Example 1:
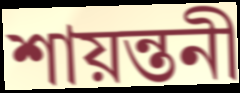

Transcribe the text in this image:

শায়ন্তনী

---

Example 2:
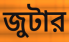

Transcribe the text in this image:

জুটার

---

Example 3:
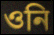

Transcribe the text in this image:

ওনি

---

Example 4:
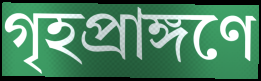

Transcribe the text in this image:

গৃহপ্রাঙ্গণে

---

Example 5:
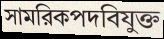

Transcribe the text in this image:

সামরিকপদবিযুক্ত